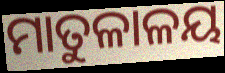
ମାତୁଳାଳୟ